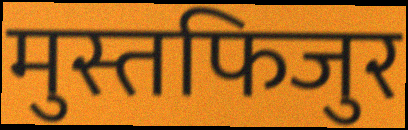
मुस्तफिजुर